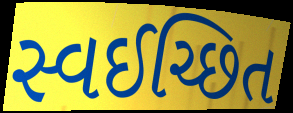
સ્વઈચ્છિત